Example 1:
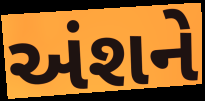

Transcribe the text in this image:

અંશને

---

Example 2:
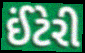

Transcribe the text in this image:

ઈંટેરી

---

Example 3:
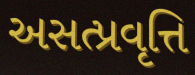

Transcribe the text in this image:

અસત્પ્રવૃત્તિ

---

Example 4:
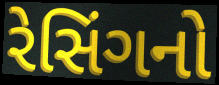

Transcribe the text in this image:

રેસિંગનો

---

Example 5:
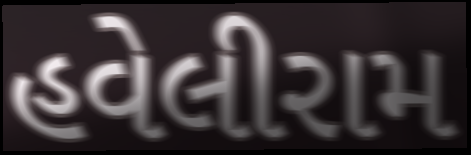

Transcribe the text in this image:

હવેલીરામ